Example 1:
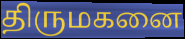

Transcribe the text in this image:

திருமகனை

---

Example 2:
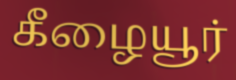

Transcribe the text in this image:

கீழையூர்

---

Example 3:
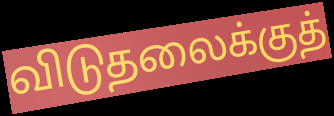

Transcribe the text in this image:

விடுதலைக்குத்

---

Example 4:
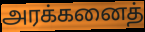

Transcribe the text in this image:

அரக்கனைத்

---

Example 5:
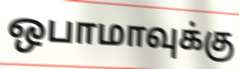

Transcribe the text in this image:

ஒபாமாவுக்கு